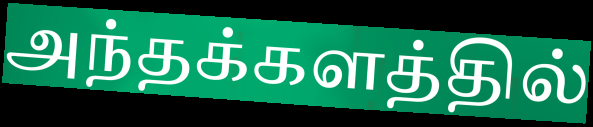
அந்தக்களத்தில்